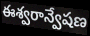
ఈశ్వరాన్వేషణ